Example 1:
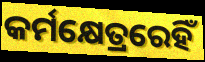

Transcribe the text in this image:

କର୍ମକ୍ଷେତ୍ରରେହିଁ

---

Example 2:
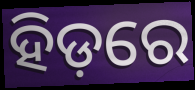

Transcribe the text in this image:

ହିଡ଼ରେ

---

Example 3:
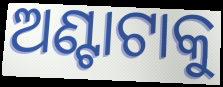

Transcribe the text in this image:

ଅଣ୍ଟାଟାକୁ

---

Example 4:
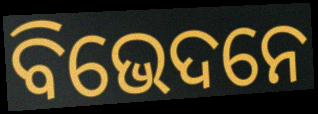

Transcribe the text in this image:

ବିଭେଦନେ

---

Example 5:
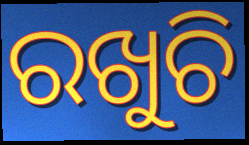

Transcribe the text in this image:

ରଖୁଚି